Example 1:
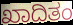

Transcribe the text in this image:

ಖಾದಿತಂ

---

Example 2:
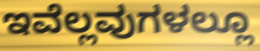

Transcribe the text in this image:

ಇವೆಲ್ಲವುಗಳಲ್ಲೂ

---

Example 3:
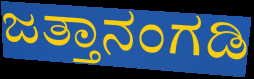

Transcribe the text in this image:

ಜತ್ತಾನಂಗಡಿ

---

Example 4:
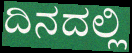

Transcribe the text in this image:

ದಿನದಲ್ಲಿ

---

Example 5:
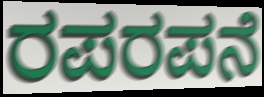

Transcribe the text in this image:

ರಪರಪನೆ